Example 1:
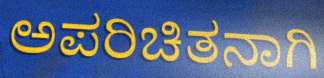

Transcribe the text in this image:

ಅಪರಿಚಿತನಾಗಿ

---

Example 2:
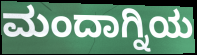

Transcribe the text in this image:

ಮಂದಾಗ್ನಿಯ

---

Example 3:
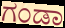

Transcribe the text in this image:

ಗಂಡಾ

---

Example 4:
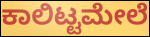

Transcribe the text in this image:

ಕಾಲಿಟ್ಟಮೇಲೆ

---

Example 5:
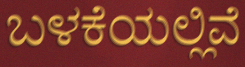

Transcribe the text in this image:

ಬಳಕೆಯಲ್ಲಿವೆ